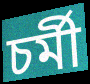
চর্মী